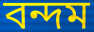
বন্দম